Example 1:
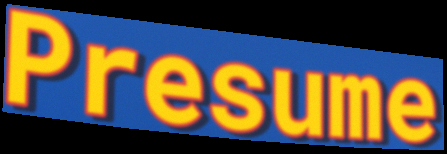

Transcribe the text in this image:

Presume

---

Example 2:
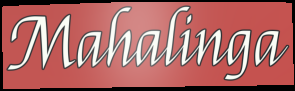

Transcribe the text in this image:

Mahalinga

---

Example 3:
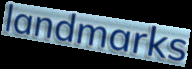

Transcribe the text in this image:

landmarks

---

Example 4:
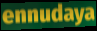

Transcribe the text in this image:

ennudaya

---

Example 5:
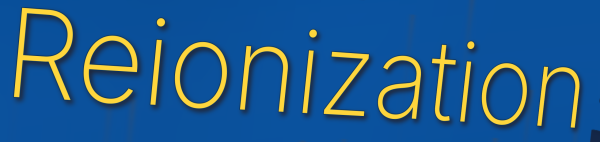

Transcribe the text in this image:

Reionization